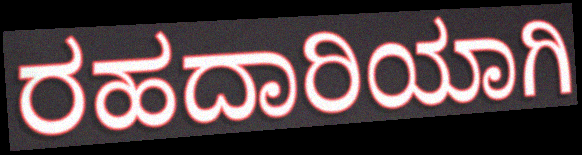
ರಹದಾರಿಯಾಗಿ